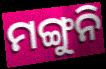
ମଙ୍ଗୁନି